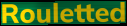
Rouletted